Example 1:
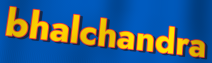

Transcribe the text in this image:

bhalchandra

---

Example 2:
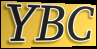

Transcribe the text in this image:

YBC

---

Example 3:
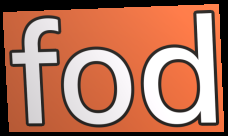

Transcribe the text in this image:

fod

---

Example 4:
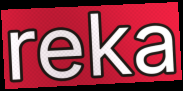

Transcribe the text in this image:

reka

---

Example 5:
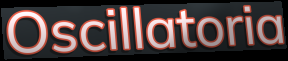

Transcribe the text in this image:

Oscillatoria